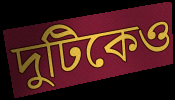
দুটিকেও